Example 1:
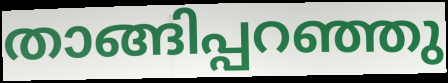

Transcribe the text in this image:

താങ്ങിപ്പറഞ്ഞു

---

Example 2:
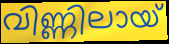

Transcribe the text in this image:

വിണ്ണിലായ്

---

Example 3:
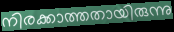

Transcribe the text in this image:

നിരക്കാത്തതായിരുന്നു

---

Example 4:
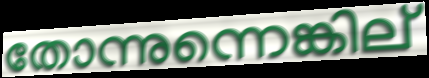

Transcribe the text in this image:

തോന്നുന്നെങ്കില്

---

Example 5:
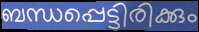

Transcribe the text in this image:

ബന്ധപ്പെട്ടിരിക്കും